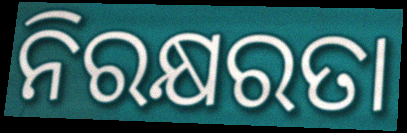
ନିରକ୍ଷରତା